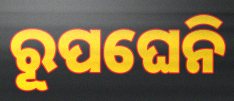
ରୂପଘେନି